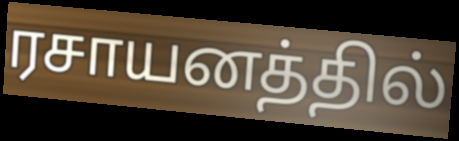
ரசாயனத்தில்